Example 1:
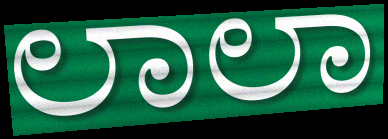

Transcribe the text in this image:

ಲಾಲಾ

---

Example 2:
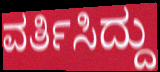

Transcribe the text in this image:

ವರ್ತಿಸಿದ್ದು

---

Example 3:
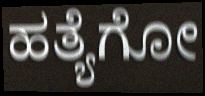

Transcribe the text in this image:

ಹತ್ಯೆಗೋ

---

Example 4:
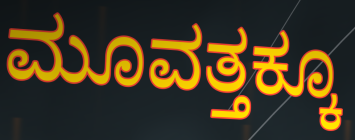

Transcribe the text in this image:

ಮೂವತ್ತಕ್ಕೂ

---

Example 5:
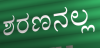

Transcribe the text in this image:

ಶರಣನಲ್ಲ